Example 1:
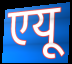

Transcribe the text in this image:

एयू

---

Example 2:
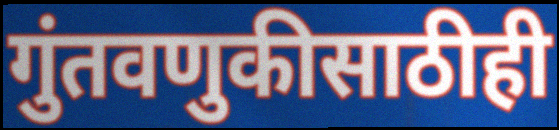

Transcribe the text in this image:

गुंतवणुकीसाठीही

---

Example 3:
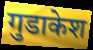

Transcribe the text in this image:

गुडाकेश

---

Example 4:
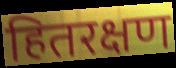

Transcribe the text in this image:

हितरक्षण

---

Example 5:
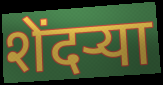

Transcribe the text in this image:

शेंदर्‍या